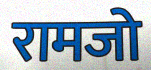
रामजो